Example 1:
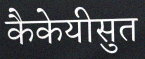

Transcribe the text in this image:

कैकेयीसुत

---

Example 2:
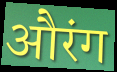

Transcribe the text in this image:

औरंग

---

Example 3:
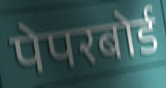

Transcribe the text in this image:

पेपरबोर्ड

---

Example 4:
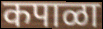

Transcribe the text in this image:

कपाळा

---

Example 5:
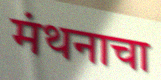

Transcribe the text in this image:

मंथनाचा